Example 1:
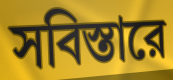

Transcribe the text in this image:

সবিস্তারে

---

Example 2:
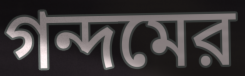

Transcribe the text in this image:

গন্দমের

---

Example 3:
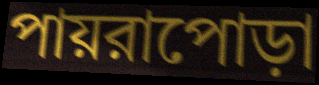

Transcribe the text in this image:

পায়রাপোড়া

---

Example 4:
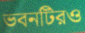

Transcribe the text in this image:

ভবনটিরও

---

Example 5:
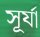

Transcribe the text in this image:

সূর্যা